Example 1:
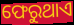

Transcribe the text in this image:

ଫେରୁଥାଏ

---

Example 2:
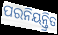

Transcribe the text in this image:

ପରନିୟନ୍ତ୍ରିତ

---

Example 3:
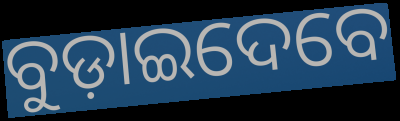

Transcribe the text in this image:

ବୁଡ଼ାଇଦେବେ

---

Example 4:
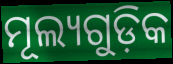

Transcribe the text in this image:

ମୂଲ୍ୟଗୁଡ଼ିକ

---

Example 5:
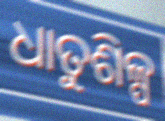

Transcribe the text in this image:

ଧାତୁଶିଳ୍ପ